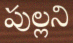
పుల్లని